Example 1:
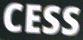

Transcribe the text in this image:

CESS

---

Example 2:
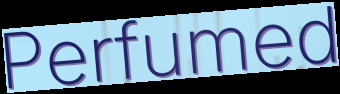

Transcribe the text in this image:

Perfumed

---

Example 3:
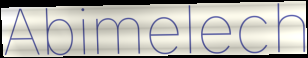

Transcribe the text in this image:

Abimelech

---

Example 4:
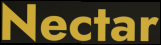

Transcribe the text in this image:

Nectar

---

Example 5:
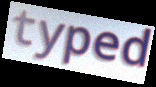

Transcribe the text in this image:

typed